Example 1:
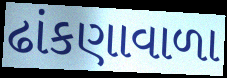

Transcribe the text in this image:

ઢાંકણાવાળા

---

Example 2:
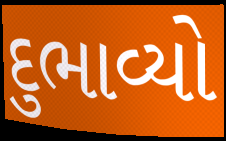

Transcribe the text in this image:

દુભાવ્યો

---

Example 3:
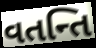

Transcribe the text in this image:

વતન્તિ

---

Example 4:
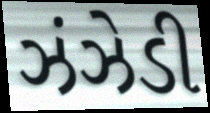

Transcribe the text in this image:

ઝંઝેડી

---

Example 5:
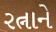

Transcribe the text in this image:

રત્નાને